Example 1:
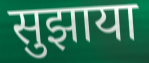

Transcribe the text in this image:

सुझाया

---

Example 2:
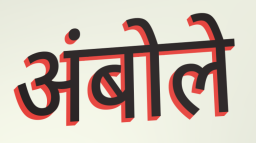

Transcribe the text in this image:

अंबोले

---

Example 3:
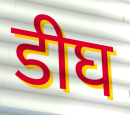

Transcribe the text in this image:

डीघ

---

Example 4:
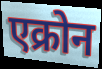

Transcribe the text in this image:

एक्रोन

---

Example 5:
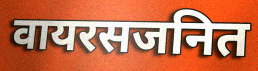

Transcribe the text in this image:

वायरसजनित